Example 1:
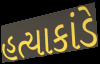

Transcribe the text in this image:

હત્યાકાંડે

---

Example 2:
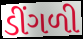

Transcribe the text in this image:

ડીંગળી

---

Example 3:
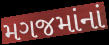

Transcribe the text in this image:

મગજમાંનાં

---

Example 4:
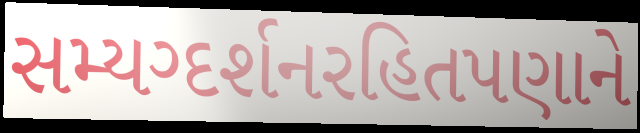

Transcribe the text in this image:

સમ્યગ્દર્શનરહિતપણાને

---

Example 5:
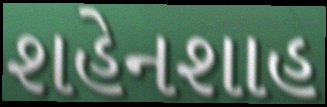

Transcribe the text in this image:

શહેનશાહ